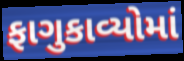
ફાગુકાવ્યોમાં